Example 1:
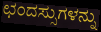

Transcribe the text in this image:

ಛಂದಸ್ಸುಗಳನ್ನು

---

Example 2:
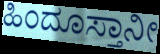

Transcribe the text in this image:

ಹಿಂದೂಸ್ತಾನೀ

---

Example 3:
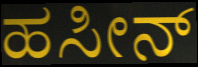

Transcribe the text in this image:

ಹಸೀನ್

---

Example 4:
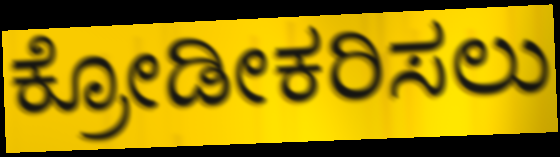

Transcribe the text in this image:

ಕ್ರೋಡೀಕರಿಸಲು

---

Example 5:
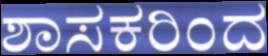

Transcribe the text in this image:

ಶಾಸಕರಿಂದ